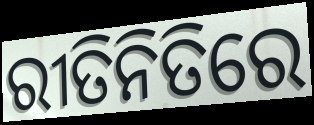
ରୀତିନିତିରେ